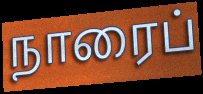
நாரைப்